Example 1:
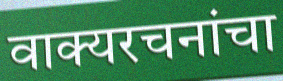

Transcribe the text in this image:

वाक्यरचनांचा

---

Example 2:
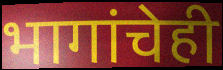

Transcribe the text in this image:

भागांचेही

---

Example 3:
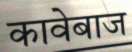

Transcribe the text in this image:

कावेबाज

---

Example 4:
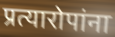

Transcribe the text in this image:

प्रत्यारोपांना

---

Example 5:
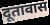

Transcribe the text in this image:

दूतावास